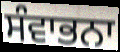
ਸੰਵਾਭਨਾ